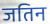
जतिन